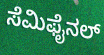
ಸೆಮಿಫೈನಲ್